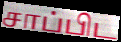
சாப்பிட